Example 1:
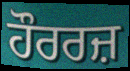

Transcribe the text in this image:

ਹੌਰਰਜ਼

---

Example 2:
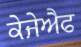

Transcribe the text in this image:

ਕੇਜੇਐਫ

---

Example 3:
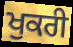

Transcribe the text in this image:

ਖੁਕਰੀ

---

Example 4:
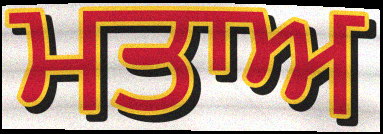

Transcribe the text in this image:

ਮਤਾਅ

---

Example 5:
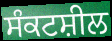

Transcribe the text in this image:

ਸੰਕਟਸ਼ੀਲ